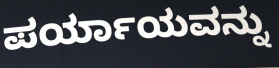
ಪರ್ಯಾಯವನ್ನು